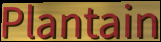
Plantain